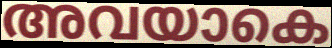
അവയാകെ